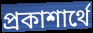
প্রকাশার্থে